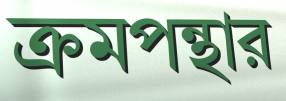
ক্রমপন্থার